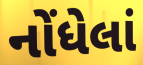
નોંધેલાં